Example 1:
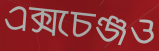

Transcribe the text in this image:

এক্সচেঞ্জও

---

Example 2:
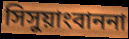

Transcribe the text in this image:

সিসুয়াংবাননা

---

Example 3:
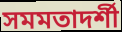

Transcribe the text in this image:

সমমতাদর্শী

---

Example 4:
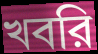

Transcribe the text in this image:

খবরি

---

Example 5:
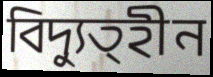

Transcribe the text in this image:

বিদ্যুত্হীন